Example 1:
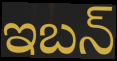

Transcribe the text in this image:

ఇబన్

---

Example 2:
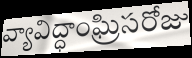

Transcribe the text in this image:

వ్యావిద్ధాంఘ్రిసరోజు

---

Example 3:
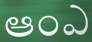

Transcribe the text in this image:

ఆంఎ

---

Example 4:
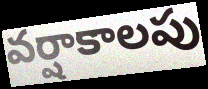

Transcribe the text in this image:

వర్షాకాలపు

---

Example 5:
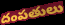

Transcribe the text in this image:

దంపతులు